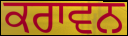
ਕਰਾਵਨ